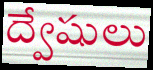
ద్వేషులు